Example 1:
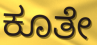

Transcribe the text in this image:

ಕೂತೇ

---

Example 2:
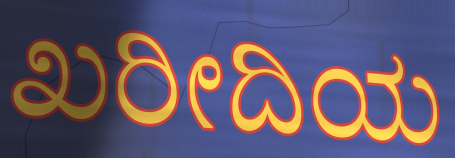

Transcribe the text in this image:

ಖರೀದಿಯ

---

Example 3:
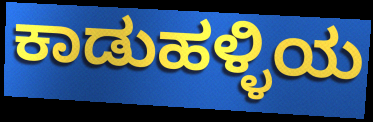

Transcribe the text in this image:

ಕಾಡುಹಳ್ಳಿಯ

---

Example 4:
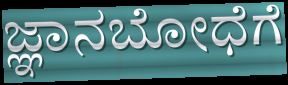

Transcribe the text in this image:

ಜ್ಞಾನಬೋಧೆಗೆ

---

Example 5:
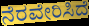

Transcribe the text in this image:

ನೆರವೇರಿಸಿದೆ